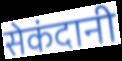
सेकंदानी